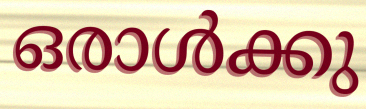
ഒരാൾക്കു